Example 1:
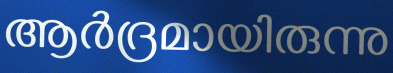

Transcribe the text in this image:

ആർദ്രമായിരുന്നു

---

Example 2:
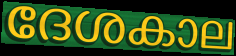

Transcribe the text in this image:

ദേശകാല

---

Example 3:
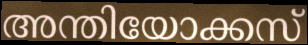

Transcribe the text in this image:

അന്തിയോക്കസ്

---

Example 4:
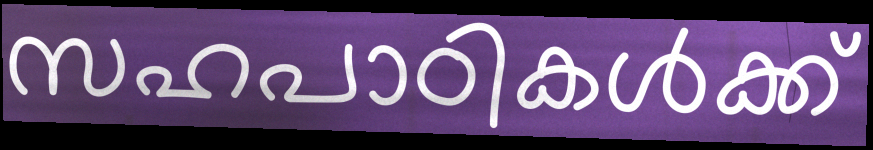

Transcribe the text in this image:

സഹപാഠികൾക്ക്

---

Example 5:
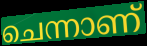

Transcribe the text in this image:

ചെന്നാണ്